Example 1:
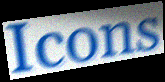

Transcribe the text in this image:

Icons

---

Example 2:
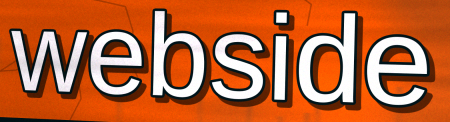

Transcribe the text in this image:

webside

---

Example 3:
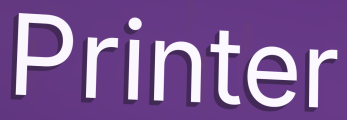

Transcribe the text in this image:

Printer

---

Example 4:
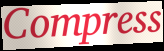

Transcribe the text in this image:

Compress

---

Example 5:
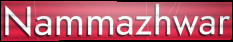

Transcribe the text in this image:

Nammazhwar